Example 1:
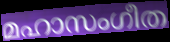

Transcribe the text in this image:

മഹാസംഗീത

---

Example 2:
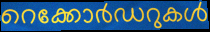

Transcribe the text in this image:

റെക്കോർഡറുകൾ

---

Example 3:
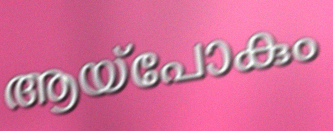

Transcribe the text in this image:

ആയ്പോകും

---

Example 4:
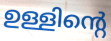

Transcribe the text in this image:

ഉള്ളിന്റെ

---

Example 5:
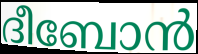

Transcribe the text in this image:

ദീബോൻ